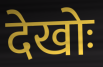
देखोः